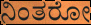
ನಿಂತರೋ